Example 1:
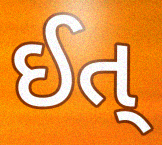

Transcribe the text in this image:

ઈત્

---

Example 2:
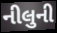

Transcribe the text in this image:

નીલુની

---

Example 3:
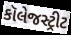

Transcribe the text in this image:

કૉલેજસ્ટ્રીટ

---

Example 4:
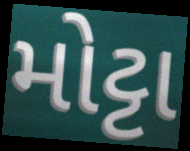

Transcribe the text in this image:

મોટ્ટા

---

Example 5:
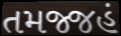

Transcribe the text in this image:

તમજ્જહં